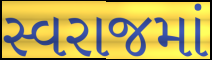
સ્વરાજમાં